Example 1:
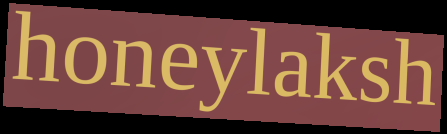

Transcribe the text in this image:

honeylaksh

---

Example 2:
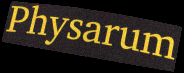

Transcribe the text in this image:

Physarum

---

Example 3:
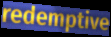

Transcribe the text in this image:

redemptive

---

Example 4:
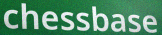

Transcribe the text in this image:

chessbase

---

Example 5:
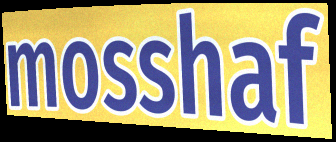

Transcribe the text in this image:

mosshaf